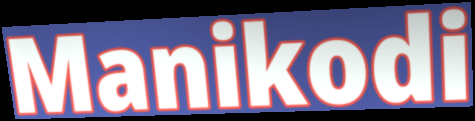
Manikodi